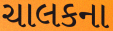
ચાલકના